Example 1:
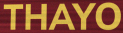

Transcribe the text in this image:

THAYO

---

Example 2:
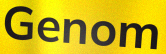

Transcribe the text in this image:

Genom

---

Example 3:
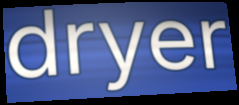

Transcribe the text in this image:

dryer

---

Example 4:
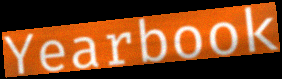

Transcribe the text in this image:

Yearbook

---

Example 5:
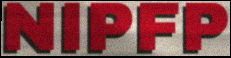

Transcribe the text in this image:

NIPFP